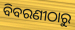
ବିବରଣୀଠାରୁ